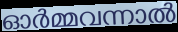
ഓർമ്മവന്നാൽ